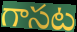
గాసట